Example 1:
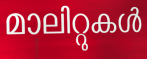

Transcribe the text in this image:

മാലിറ്റുകൾ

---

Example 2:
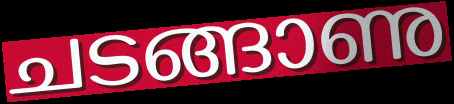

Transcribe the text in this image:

ചടങ്ങാണു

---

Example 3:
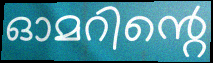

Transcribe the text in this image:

ഓമറിന്റെ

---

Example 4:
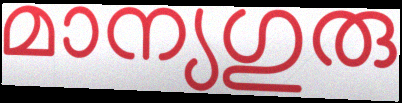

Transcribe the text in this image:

മാന്യഗുരു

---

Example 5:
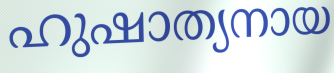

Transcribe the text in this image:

ഹുഷാത്യനായ